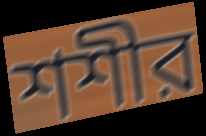
শশীর